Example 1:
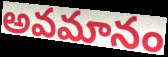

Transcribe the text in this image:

అవమానం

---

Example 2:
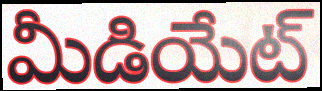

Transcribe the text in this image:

మీడియేట్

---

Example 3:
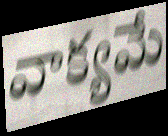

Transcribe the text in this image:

వాక్యమే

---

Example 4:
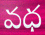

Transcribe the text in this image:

వధ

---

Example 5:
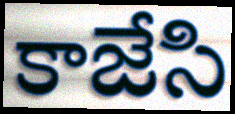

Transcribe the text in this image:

కాజేసి